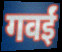
गवईं